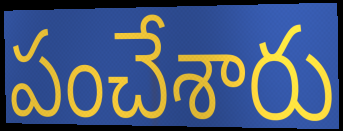
పంచేశారు